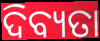
ଦିବ୍ୟତା